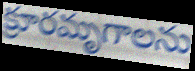
క్రూరమృగాలను